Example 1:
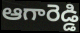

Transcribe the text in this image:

ఆగారెడ్డి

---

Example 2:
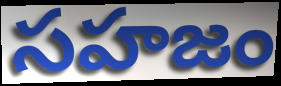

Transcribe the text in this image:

సహజం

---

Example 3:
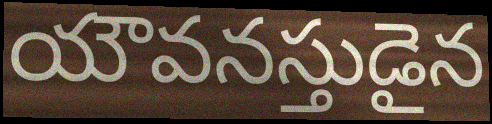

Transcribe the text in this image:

యౌవనస్తుడైన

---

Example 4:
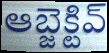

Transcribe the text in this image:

ఆబ్జెక్టివ్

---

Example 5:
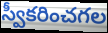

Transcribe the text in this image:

స్వీకరించగల